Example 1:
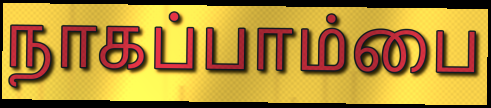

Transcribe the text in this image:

நாகப்பாம்பை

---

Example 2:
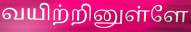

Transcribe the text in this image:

வயிற்றினுள்ளே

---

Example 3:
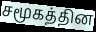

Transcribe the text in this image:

சமூகத்தின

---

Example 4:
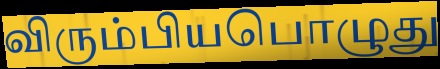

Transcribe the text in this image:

விரும்பியபொழுது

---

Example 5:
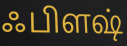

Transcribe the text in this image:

ஃபிளஷ்